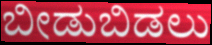
ಬೀಡುಬಿಡಲು